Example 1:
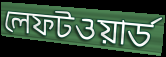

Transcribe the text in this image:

লেফটওয়ার্ড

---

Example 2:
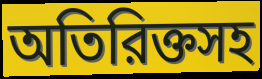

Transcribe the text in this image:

অতিরিক্তসহ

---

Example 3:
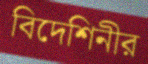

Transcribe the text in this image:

বিদেশিনীর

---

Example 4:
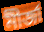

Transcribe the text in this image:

মীর্জা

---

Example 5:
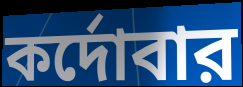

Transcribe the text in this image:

কর্দোবার